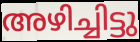
അഴിച്ചിട്ടു